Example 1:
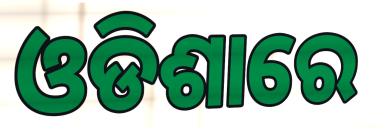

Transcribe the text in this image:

ଓଡିଶାରେ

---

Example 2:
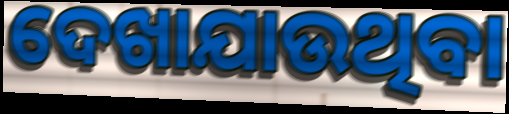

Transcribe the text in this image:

ଦେଖାଯାଉଥିବା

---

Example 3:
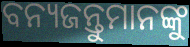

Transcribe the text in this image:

ବନ୍ୟଜନ୍ତୁମାନଙ୍କୁ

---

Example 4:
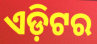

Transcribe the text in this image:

ଏଡ଼ିଟର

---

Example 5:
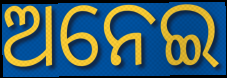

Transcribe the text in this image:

ଅନେଇ